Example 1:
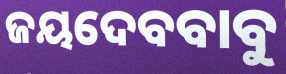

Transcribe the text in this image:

ଜୟଦେବବାବୁ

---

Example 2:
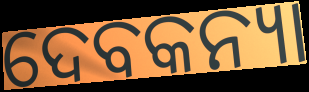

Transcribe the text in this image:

ଦେବକନ୍ୟା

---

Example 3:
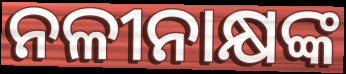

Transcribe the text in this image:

ନଳୀନାକ୍ଷଙ୍କ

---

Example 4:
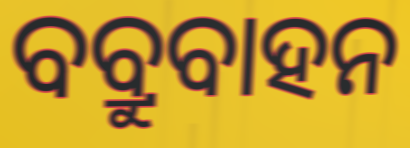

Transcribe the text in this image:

ବବ୍ରୁବାହନ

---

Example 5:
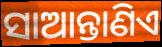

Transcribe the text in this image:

ସାଆନ୍ତାଣିଏ